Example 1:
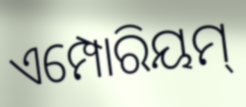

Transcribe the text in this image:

ଏମ୍ପୋରିୟମ୍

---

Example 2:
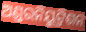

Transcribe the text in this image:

ଅଣ୍ଡରନିୟୁଟ୍ରିଶନ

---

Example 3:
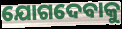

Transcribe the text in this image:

ଯୋଗଦେବାକୁ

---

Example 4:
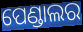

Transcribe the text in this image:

ପେଣ୍ଡାଲର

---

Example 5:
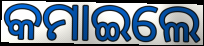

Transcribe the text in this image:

କମାଇଲେ